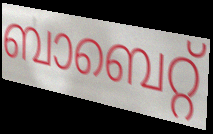
ബാബെറ്റ്